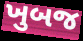
ખુબજ